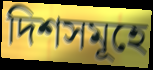
দিশসমূহে